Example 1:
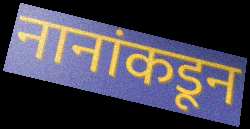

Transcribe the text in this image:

नानांकडून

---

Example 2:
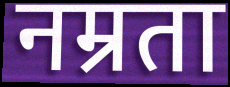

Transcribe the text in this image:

नम्रता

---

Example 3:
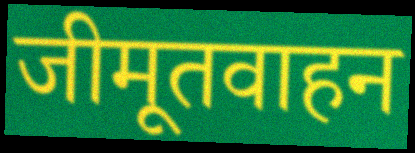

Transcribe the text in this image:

जीमूतवाहन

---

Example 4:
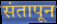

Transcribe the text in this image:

संतापून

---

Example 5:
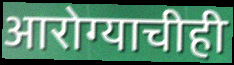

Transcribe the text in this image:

आरोग्याचीही